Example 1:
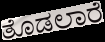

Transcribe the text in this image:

ತೊಡಲಾರೆ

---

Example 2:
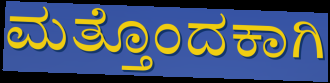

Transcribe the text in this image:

ಮತ್ತೊಂದಕಾಗಿ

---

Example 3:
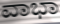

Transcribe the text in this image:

ವಾಭಾ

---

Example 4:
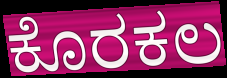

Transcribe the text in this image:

ಕೊರಕಲ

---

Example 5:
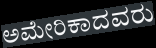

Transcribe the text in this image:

ಅಮೇರಿಕಾದವರು